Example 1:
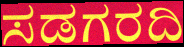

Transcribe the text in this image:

ಸಡಗರದಿ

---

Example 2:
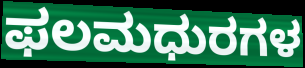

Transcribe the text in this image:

ಫಲಮಧುರಗಳ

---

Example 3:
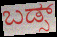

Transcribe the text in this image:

ಬಡ್ಸ್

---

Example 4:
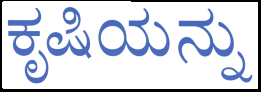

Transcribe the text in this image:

ಕೃಷಿಯನ್ನು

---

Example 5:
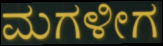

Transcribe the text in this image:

ಮಗಳೀಗ